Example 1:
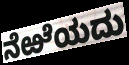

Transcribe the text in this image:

ನೆಱೆಯದು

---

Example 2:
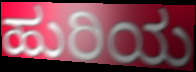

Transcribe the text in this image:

ಹುರಿಯ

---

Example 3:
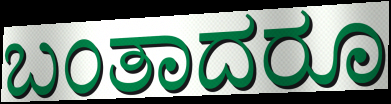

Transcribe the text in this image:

ಬಂತಾದರೂ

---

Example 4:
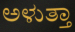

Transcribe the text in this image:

ಅಳುತ್ತಾ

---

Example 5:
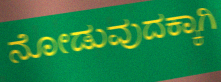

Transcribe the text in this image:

ನೋಡುವುದಕ್ಕಾಗಿ